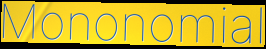
Mononomial